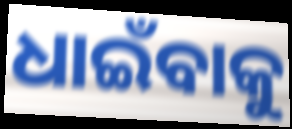
ଧାଇଁବାକୁ